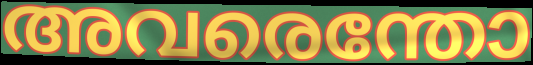
അവരെന്തോ